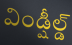
విండ్షీల్డ్